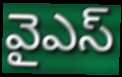
వైఎస్